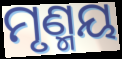
ମୃଣ୍ମୟ